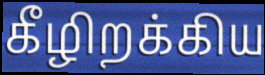
கீழிறக்கிய